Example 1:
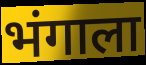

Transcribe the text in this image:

भंगाला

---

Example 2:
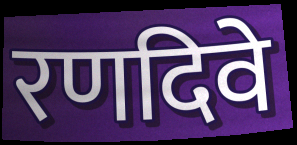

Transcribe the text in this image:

रणदिवे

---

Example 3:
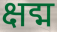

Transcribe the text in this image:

क्षद्म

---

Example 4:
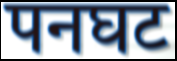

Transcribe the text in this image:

पनघट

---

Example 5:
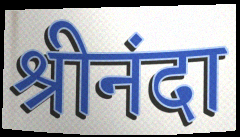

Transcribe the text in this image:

श्रीनंदा